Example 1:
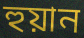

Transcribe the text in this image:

হুয়ান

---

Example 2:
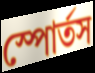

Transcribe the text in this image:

স্পোর্তস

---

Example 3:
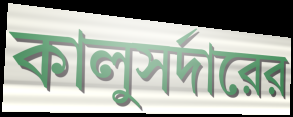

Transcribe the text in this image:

কালুসর্দারের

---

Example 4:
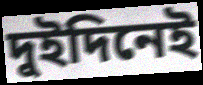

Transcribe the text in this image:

দুইদিনেই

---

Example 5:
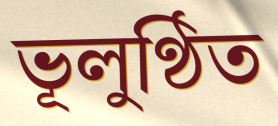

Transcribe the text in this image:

ভূলুণ্ঠিত